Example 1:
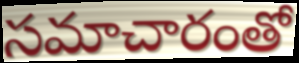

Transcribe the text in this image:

సమాచారంతో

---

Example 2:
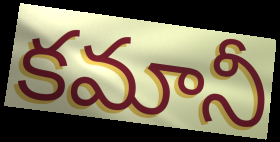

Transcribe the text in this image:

కమానీ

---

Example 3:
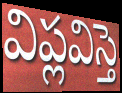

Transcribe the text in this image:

విప్లవిస్తె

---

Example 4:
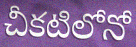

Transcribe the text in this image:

చీకటిలోనో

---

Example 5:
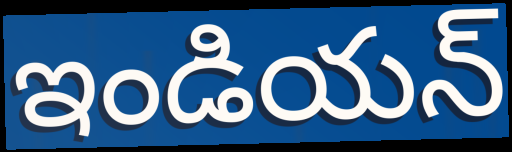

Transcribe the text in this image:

ఇండియన్